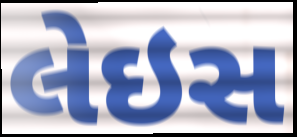
લેઇસ